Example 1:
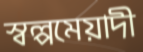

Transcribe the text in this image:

স্বল্পমেয়াদী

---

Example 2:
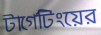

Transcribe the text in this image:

টার্গেটিংয়ের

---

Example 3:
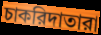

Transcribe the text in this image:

চাকরিদাতারা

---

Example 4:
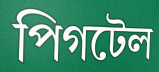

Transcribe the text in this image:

পিগটেল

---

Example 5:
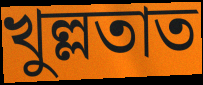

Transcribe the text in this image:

খুল্লতাত